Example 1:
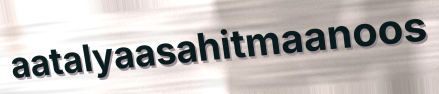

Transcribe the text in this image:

aatalyaasahitmaanoos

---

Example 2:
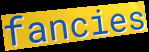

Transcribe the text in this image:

fancies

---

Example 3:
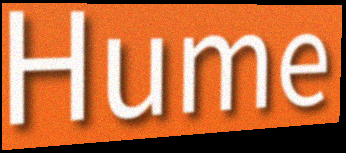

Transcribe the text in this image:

Hume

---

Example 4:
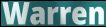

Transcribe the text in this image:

Warren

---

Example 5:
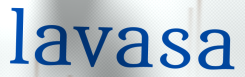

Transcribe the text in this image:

lavasa